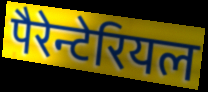
पैरेन्टेरियल